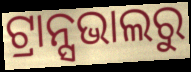
ଟ୍ରାନ୍ସଭାଲରୁ